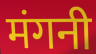
मंगनी